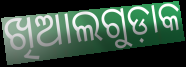
ଖିଆଲଗୁଡ଼ାକ